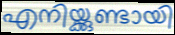
എനിയ്ക്കുണ്ടായി